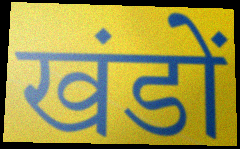
खंडों